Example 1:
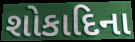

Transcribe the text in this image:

શોકાદિના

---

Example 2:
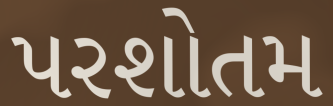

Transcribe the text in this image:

પરશોતમ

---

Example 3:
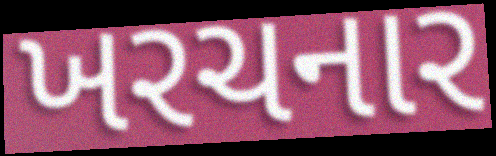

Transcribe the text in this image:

ખરચનાર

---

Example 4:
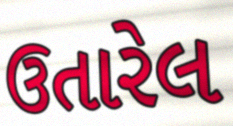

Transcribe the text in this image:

ઉતારેલ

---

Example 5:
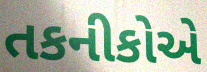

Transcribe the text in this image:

તકનીકોએ